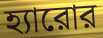
হ্যারোর